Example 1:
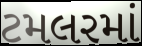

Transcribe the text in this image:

ટમલરમાં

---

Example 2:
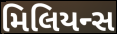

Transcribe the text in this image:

મિલિયન્સ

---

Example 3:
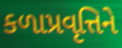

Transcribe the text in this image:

કળાપ્રવૃત્તિને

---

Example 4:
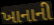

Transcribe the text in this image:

ખાનાની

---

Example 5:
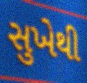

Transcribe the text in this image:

સુખેથી